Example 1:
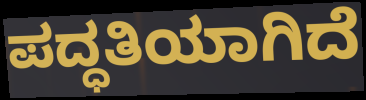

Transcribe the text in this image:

ಪದ್ಧತಿಯಾಗಿದೆ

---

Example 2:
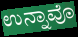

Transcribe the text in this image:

ಉನ್ನಾವೊ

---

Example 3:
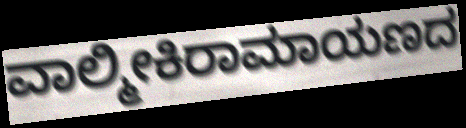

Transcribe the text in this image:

ವಾಲ್ಮೀಕಿರಾಮಾಯಣದ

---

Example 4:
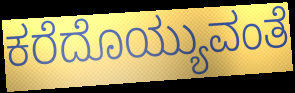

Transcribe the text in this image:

ಕರೆದೊಯ್ಯುವಂತೆ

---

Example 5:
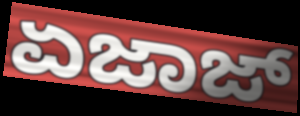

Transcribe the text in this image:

ಏಜಾಜ್